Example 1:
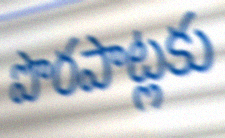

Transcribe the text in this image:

పొరపాట్లకు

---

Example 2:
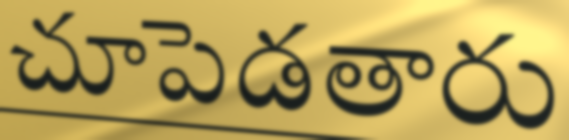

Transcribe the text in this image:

చూపెడతారు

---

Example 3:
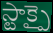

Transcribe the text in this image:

స్టాక్పై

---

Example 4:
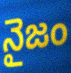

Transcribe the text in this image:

నైజం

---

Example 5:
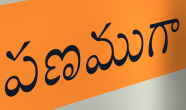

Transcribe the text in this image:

పణముగా